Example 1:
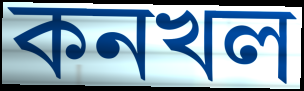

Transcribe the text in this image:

কনখল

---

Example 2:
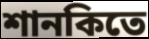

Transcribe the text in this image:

শানকিতে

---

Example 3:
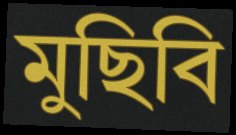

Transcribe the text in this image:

মুছিবি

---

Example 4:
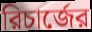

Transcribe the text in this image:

রিচার্জের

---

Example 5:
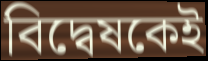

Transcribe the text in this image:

বিদ্বেষকেই